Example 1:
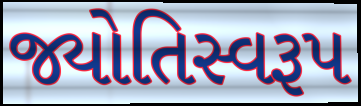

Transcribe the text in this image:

જ્યોતિસ્વરૂપ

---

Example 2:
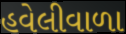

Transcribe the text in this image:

હવેલીવાળા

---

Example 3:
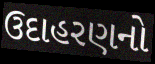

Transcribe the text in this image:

ઉદાહરણનો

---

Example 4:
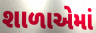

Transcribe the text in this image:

શાળાએમાં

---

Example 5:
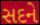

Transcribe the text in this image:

સદને